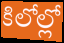
కిలోల్లో